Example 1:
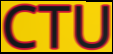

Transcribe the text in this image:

CTU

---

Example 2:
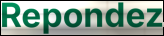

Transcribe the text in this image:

Repondez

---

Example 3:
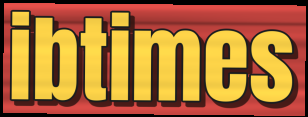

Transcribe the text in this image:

ibtimes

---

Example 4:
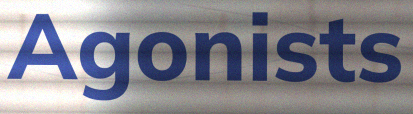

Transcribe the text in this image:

Agonists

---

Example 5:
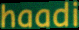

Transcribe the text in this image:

haadi